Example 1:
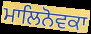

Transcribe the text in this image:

ਮਾਲਿਨੋਵਕਾ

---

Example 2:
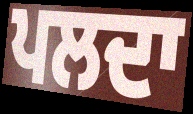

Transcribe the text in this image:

ਪਲਦਾ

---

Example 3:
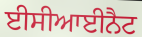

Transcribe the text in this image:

ਈਸੀਆਈਨੈਟ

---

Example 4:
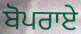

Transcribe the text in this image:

ਬੋਪਰਾਏ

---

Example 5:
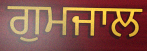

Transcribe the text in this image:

ਗੁਮਜਾਲ